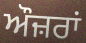
ਔਜ਼ਰਾਂ